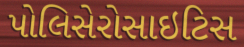
પોલિસેરોસાઇટિસ